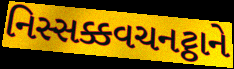
નિસ્સક્કવચનટ્ઠાને